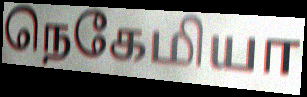
நெகேமியா